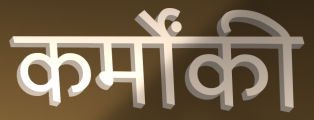
कर्मोंकी